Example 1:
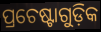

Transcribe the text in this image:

ପ୍ରଚେଷ୍ଟାଗୁଡ଼ିକ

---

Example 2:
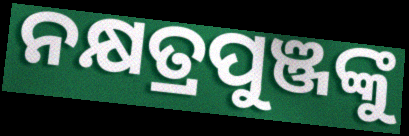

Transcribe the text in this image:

ନକ୍ଷତ୍ରପୁଞ୍ଜଙ୍କୁ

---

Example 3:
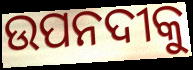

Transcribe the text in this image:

ଉପନଦୀକୁ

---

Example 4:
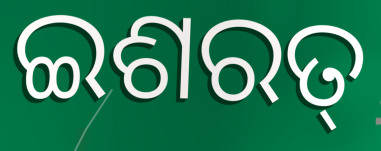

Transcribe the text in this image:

ଇଶରତ୍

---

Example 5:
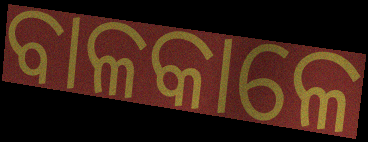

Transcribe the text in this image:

ବାଳକାଳେ